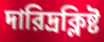
দারিদ্রক্লিষ্ট